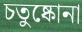
চতুষ্কোনা